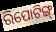
ରିପୋଟିଙ୍ଗ୍